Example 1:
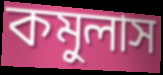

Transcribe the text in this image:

কমুলাস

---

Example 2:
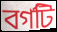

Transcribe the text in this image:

বর্গটি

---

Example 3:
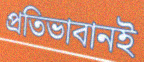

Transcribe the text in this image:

প্রতিভাবানই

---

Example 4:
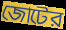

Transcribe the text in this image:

জোটের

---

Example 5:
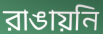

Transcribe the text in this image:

রাঙায়নি